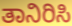
ತಾನಿರಿಸಿ